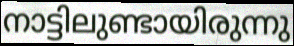
നാട്ടിലുണ്ടായിരുന്നു